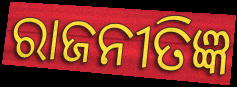
ରାଜନୀତିଜ୍ଞ